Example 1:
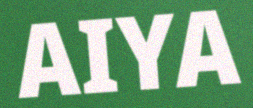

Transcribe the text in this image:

AIYA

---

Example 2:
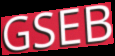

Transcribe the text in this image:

GSEB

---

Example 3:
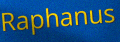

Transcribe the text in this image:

Raphanus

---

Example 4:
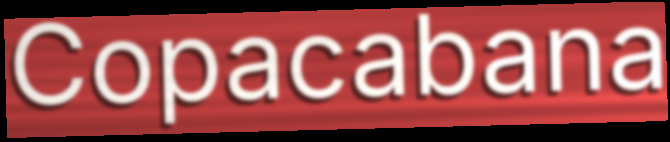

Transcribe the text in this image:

Copacabana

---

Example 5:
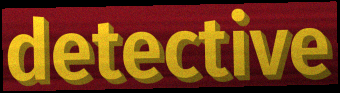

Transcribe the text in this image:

detective